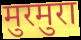
मुरमुरा